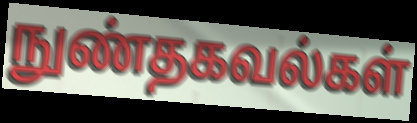
நுண்தகவல்கள்